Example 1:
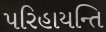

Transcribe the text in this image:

પરિહાયન્તિ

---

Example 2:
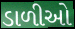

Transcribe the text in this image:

ડાળીઓ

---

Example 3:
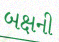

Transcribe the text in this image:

બક્ષની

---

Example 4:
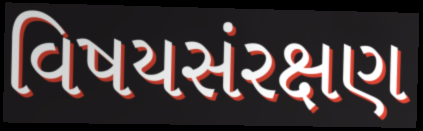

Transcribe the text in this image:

વિષયસંરક્ષણ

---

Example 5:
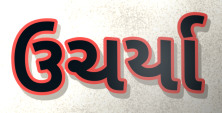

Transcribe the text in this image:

ઉચર્યા